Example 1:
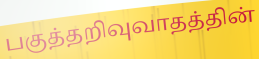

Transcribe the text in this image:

பகுத்தறிவுவாதத்தின்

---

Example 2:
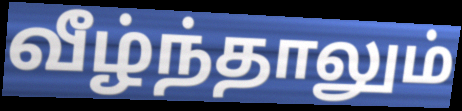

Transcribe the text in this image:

வீழ்ந்தாலும்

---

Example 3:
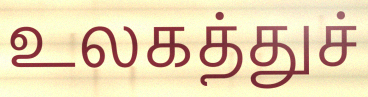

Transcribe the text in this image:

உலகத்துச்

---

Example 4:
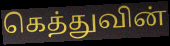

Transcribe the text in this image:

கெத்துவின்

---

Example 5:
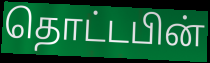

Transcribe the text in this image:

தொட்டபின்